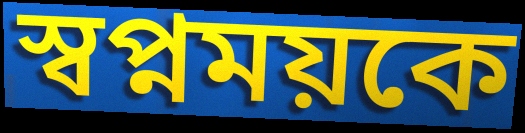
স্বপ্নময়কে